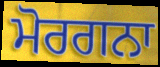
ਮੋਰਗਨਾ